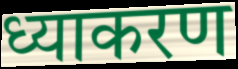
ध्याकरण